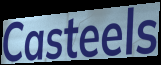
Casteels